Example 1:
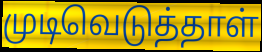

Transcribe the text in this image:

முடிவெடுத்தாள்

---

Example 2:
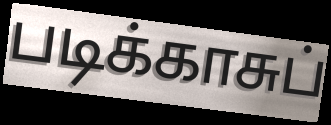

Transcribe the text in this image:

படிக்காசுப்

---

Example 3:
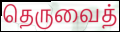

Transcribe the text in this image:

தெருவைத்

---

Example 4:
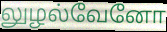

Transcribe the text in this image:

லுழல்வேனோ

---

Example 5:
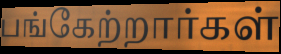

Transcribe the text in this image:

பங்கேற்றார்கள்